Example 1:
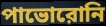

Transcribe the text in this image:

পাভোরোনি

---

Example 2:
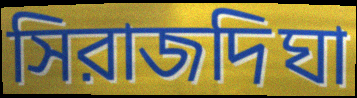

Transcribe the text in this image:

সিরাজদিঘা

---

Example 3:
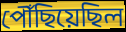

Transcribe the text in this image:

পৌঁছিয়েছিল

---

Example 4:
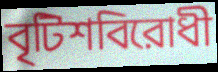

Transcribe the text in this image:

বৃটিশবিরোধী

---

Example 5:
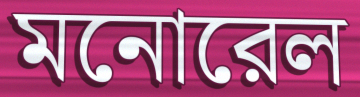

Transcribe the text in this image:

মনোরেল